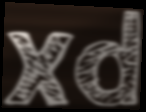
xd